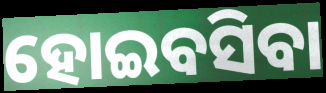
ହୋଇବସିବା